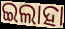
ଇଲାହା